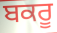
ਬਕਰੂ